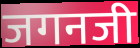
जगनजी